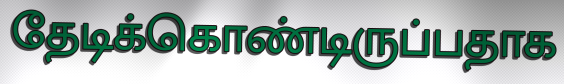
தேடிக்கொண்டிருப்பதாக